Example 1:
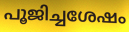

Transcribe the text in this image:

പൂജിച്ചശേഷം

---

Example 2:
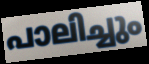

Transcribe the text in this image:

പാലിച്ചും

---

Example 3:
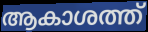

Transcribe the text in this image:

ആകാശത്ത്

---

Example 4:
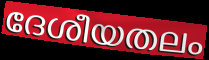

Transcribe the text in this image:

ദേശീയതലം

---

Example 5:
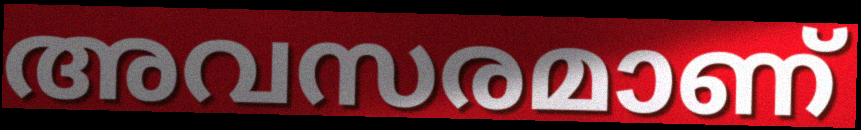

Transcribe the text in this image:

അവസരമാണ്